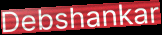
Debshankar